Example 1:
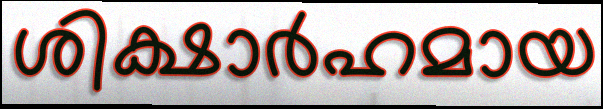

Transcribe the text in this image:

ശിക്ഷാർഹമായ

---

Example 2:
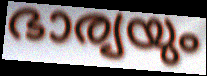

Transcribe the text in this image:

ഭാര്യയും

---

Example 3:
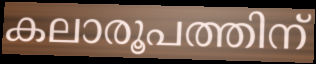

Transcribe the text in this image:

കലാരൂപത്തിന്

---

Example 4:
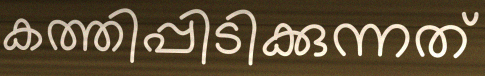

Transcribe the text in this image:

കത്തിപ്പിടിക്കുന്നത്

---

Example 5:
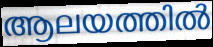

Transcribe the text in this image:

ആലയത്തിൽ